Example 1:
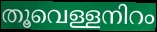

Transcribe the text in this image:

തൂവെള്ളനിറം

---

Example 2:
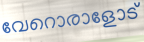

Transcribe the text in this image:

വേറൊരാളോട്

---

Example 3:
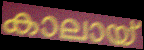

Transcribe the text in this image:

കാലായ്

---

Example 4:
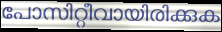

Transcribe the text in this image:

പോസിറ്റീവായിരിക്കുക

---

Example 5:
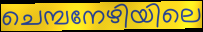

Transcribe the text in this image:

ചെമ്പനേഴിയിലെ